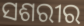
ସଶରୀର